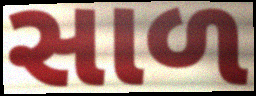
સાળ